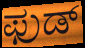
ಫುಡ್